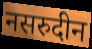
नसरुदीन